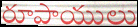
రూపాయులు